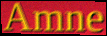
Amne